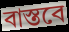
বাস্তবে